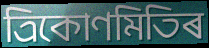
ত্ৰিকোণমিতিৰ